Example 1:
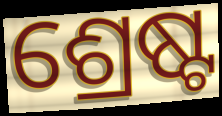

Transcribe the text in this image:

ଶ୍ରେଷ୍ଟ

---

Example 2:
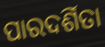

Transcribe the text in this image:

ପାରଦର୍ଶିତା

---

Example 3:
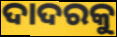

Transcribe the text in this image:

ଦାଦରକୁ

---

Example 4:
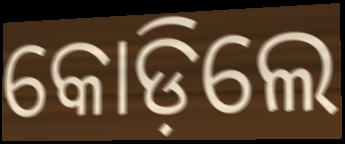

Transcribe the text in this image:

କୋଡ଼ିଲେ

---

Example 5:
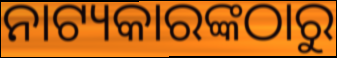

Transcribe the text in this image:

ନାଟ୍ୟକାରଙ୍କଠାରୁ